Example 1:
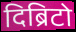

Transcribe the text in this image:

दिब्रिटो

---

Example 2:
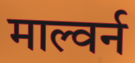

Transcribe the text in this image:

माल्वर्न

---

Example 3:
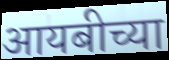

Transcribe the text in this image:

आयबीच्या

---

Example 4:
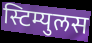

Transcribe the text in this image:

स्टिम्युलस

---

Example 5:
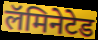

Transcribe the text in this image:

लॅमिनेटेड